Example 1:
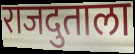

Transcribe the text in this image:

राजदुताला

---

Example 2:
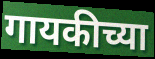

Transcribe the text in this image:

गायकीच्या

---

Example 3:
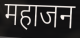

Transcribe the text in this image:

महाजन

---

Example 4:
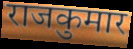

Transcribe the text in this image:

राजकुमार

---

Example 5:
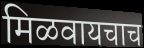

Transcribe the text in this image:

मिळवायचाच